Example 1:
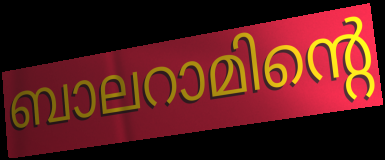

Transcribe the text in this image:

ബാലറാമിന്റെ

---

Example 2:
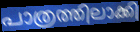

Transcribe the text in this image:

പാത്രത്തിലാക്കി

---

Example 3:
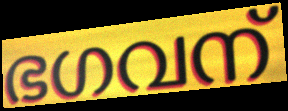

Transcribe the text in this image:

ഭഗവന്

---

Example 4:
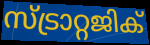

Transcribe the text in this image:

സ്ട്രാറ്റജിക്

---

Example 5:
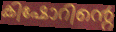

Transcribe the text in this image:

കിഷോറിന്റെ